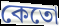
কেতো